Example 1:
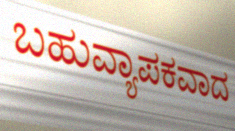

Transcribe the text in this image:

ಬಹುವ್ಯಾಪಕವಾದ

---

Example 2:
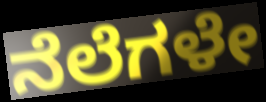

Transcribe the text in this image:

ನೆಲೆಗಳೇ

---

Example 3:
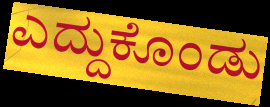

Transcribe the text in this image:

ಎದ್ದುಕೊಂಡು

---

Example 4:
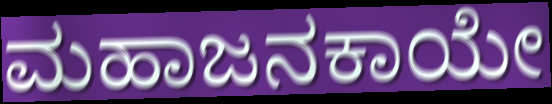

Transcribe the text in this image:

ಮಹಾಜನಕಾಯೇ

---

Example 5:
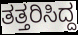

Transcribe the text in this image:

ತತ್ತರಿಸಿದ್ದ